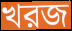
খরজ